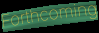
Forthcoming